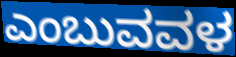
ಎಂಬುವವಳ